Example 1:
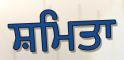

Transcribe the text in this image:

ਸ਼ਮਿਤਾ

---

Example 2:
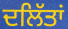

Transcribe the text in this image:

ਦਲਿੱਤਾਂ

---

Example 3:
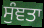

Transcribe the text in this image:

ਸੁੰਞਤਾ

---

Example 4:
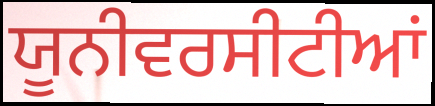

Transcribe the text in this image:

ਯੂਨੀਵਰਸੀਟੀਆਂ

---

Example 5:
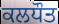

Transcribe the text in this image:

ਕਲਧੌਤ